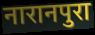
नारानपुरा